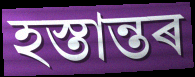
হস্তান্তৰ